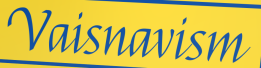
Vaisnavism